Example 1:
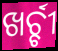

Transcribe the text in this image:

ଖର୍ଚ୍ଚୀ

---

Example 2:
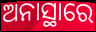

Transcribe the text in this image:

ଅନାସ୍ଥାରେ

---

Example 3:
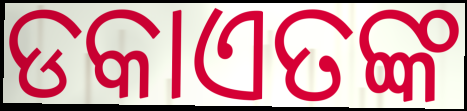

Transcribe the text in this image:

ଡକାଏତଙ୍କ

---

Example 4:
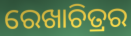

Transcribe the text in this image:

ରେଖାଚିତ୍ରର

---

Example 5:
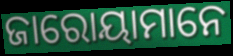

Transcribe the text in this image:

ଜାରୋୟାମାନେ